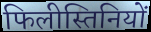
फिलीस्तिनियों